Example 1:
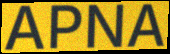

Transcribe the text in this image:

APNA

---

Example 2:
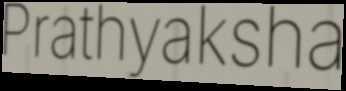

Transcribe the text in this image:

Prathyaksha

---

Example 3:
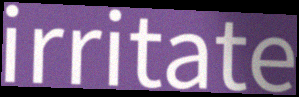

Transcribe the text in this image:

irritate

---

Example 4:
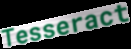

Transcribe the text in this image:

Tesseract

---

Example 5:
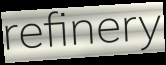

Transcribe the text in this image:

refinery